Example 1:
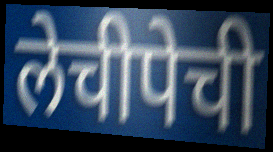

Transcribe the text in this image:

लेचीपेची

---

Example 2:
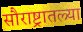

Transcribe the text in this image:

सौराष्ट्रातल्या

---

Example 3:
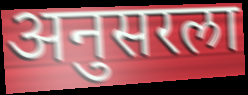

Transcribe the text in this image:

अनुसरला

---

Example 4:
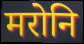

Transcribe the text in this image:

मरोनि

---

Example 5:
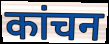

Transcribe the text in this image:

कांचन